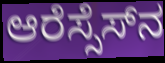
ಆರೆಸ್ಸೆಸ್‌ನ